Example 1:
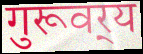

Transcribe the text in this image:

गुरूवर्य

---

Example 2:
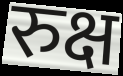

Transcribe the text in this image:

रुक्ष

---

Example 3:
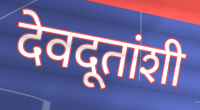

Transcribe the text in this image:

देवदूतांशी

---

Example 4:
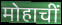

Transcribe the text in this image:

मोहाचीं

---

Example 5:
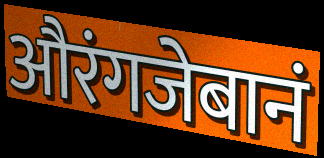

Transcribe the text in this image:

औरंगजेबानं